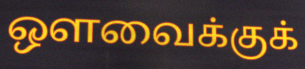
ஔவைக்குக்